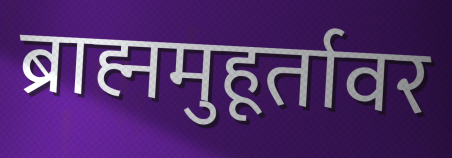
ब्राह्ममुहूर्तावर